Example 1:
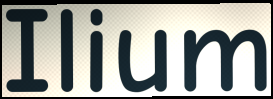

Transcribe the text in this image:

Ilium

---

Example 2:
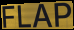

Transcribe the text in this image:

FLAP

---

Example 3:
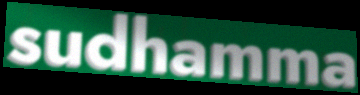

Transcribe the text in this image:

sudhamma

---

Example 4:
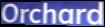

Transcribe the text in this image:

Orchard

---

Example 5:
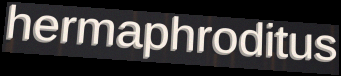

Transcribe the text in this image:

hermaphroditus